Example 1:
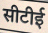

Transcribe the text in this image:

सीटीई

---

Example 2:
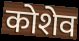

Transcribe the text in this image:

कोशेव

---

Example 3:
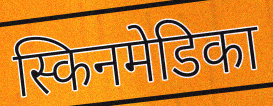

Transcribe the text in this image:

स्किनमेडिका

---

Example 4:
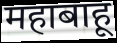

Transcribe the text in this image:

महाबाहू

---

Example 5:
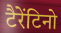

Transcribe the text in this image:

टैरेंटिनो